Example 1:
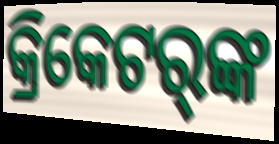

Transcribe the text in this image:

କ୍ରିକେଟର୍‌ଙ୍କ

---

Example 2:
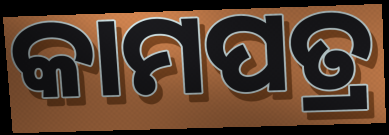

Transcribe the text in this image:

କାମପତ୍ର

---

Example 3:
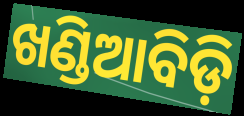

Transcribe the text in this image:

ଖଣ୍ଡିଆବିଡ଼ି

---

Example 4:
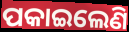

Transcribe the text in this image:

ପକାଇଲେଣି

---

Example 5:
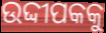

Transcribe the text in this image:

ଉଦ୍ଦୀପକକୁ